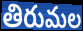
తిరుమల